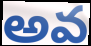
అవ